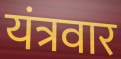
यंत्रवार